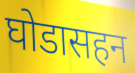
घोडासहन